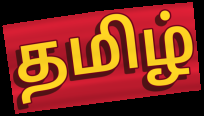
தமிழ்